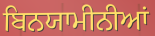
ਬਿਨਯਾਮੀਨੀਆਂ